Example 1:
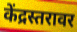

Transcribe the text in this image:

केंद्रस्तरावर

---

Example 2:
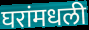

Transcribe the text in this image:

घरांमधली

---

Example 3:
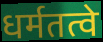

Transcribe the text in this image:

धर्मतत्वे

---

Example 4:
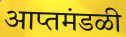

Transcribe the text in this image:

आप्तमंडळी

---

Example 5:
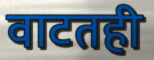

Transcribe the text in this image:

वाटतही